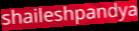
shaileshpandya